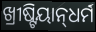
ଖ୍ରୀଷ୍ଟିୟାନ୍‌ଧର୍ମ